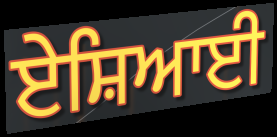
ਏਸ਼ਿਆਈ